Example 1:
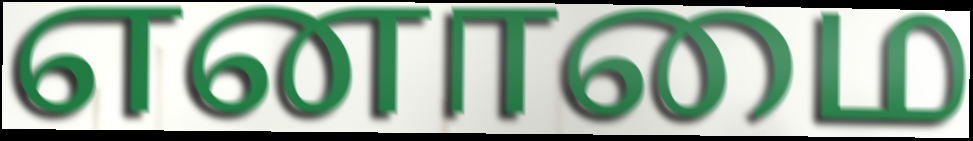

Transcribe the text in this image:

எனாமை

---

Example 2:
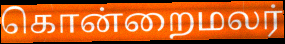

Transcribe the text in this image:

கொன்றைமலர்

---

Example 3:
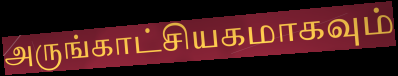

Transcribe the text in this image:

அருங்காட்சியகமாகவும்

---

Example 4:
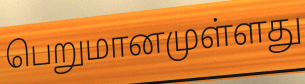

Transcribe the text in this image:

பெறுமானமுள்ளது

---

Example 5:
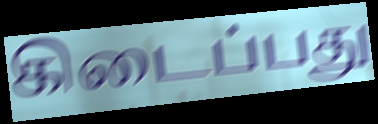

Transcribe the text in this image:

கிடைப்பது